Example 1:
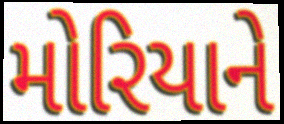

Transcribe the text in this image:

મોરિયાને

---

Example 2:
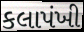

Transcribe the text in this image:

કલાપંખી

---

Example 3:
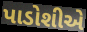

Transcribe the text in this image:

પાડોશીએ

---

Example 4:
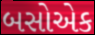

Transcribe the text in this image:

બસોએક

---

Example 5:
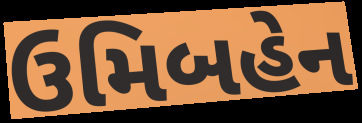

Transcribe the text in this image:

ઉમિબહેન